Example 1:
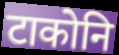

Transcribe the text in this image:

टाकोनि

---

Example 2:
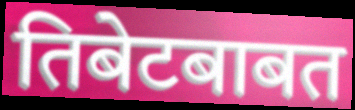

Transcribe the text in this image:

तिबेटबाबत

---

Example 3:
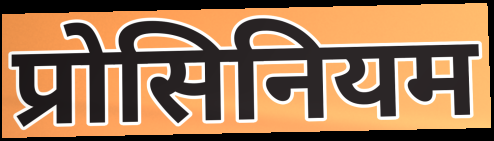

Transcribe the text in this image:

प्रोसिनियम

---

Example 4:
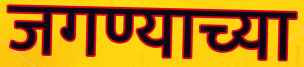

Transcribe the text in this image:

जगण्याच्या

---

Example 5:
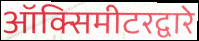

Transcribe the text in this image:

ऑक्सिमीटरद्वारे